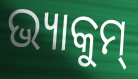
ଭ୍ୟାକୁମ୍